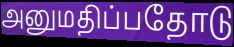
அனுமதிப்பதோடு